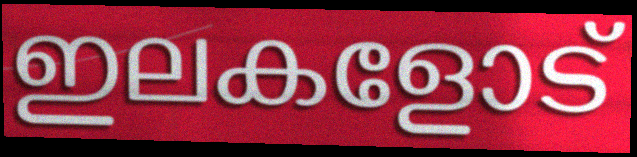
ഇലകളോട്